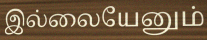
இல்லையேனும்